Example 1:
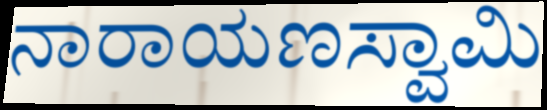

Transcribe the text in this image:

ನಾರಾಯಣಸ್ವಾಮಿ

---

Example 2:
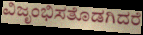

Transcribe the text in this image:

ವಿಜೃಂಭಿಸತೊಡಗಿದರೆ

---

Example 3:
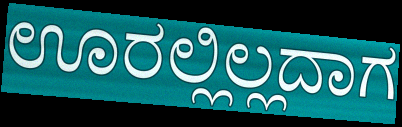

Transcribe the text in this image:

ಊರಲ್ಲಿಲ್ಲದಾಗ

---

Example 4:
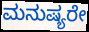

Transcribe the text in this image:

ಮನುಷ್ಯರೇ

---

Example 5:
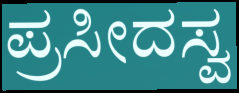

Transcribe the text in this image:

ಪ್ರಸೀದಸ್ವ